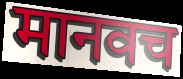
मानवच